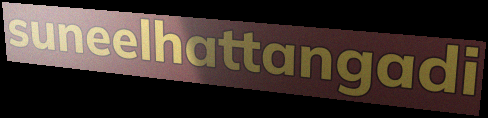
suneelhattangadi